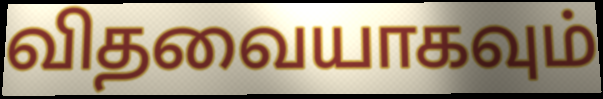
விதவையாகவும்